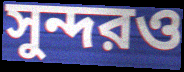
সুন্দরও